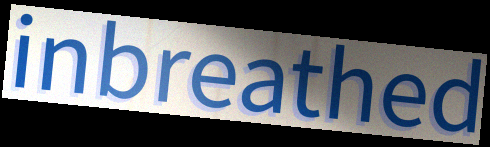
inbreathed